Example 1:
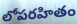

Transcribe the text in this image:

లోపరహితం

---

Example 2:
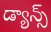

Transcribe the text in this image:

డ్యాన్స్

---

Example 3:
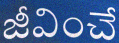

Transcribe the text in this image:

జీవించే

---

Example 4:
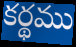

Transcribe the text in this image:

కర్థము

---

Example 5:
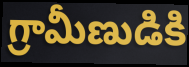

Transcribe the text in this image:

గ్రామీణుడికి